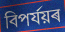
বিপৰ্যয়ৰ